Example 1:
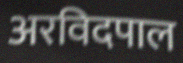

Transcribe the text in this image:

अरविदपाल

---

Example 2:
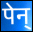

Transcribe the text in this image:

पेन्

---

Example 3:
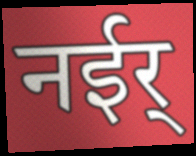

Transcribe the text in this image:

नईर्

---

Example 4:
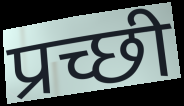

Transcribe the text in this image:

प्रच्छी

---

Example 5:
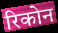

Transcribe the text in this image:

रिकोन